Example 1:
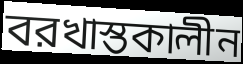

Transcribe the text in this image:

বরখাস্তকালীন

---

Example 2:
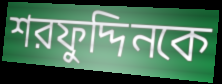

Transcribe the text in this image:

শরফুদ্দিনকে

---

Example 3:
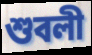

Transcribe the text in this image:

শুবলী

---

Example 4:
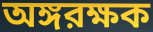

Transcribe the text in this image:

অঙ্গরক্ষক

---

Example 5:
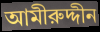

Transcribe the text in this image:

আমীরুদ্দীন